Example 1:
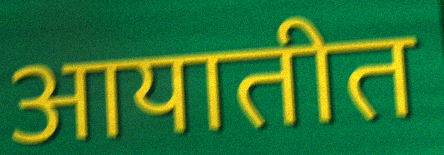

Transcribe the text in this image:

आयातीत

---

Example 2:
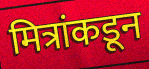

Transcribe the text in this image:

मित्रांकडून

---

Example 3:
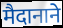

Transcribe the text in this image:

मैदानाने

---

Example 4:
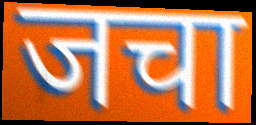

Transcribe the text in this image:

जचा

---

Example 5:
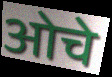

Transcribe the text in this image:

ओचे